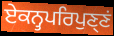
ਏਕਨ੍ਤਪਰਿਪੁਣ੍ਣਂ